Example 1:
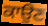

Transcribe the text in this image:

ਕਾਉਣ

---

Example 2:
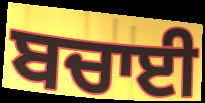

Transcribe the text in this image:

ਬਚਾਈ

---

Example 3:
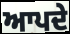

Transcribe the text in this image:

ਆਪਦੇ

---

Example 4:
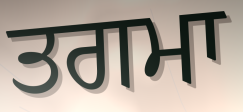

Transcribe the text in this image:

ਤਗਮਾ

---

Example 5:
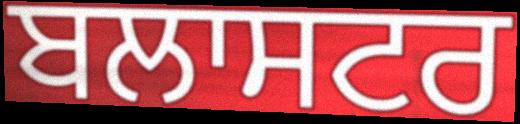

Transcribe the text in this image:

ਬਲਾਸਟਰ